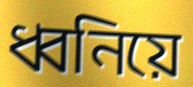
ধ্বনিয়ে